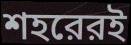
শহরেরই